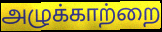
அழுக்காற்றை